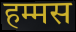
हम्मस